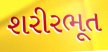
શરીરભૂત